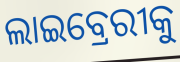
ଲାଇବ୍ରେରୀକୁ